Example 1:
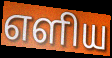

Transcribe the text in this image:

எளிய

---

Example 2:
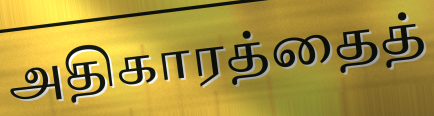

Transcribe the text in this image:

அதிகாரத்தைத்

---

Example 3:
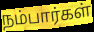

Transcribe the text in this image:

நம்பார்கள்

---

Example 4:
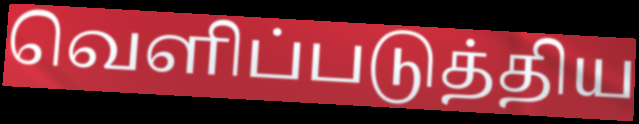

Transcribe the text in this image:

வெளிப்படுத்திய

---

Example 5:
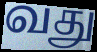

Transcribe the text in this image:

வது